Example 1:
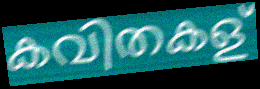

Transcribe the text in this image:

കവിതകള്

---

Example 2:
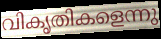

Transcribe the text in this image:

വികൃതികളെന്നു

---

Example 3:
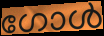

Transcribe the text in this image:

ഗോൾ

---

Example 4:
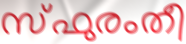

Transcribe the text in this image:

സ്ഫുരംതീ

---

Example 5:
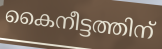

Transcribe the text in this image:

കൈനീട്ടത്തിന്